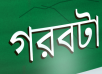
গরবটা